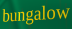
bungalow